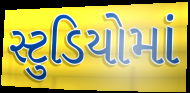
સ્ટુડિયોમાં